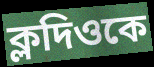
ক্লদিওকে